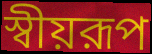
স্বীয়রূপ